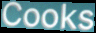
Cooks